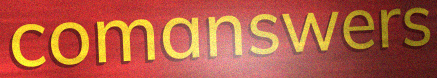
comanswers